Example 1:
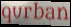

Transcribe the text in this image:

qurban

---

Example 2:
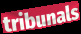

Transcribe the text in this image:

tribunals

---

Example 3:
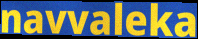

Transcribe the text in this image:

navvaleka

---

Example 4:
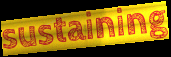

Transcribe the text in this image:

sustaining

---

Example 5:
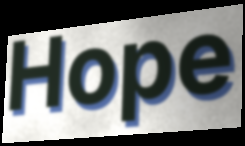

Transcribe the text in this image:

Hope